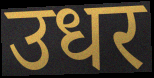
उधर